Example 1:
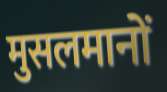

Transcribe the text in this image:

मुसलमानों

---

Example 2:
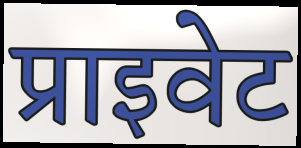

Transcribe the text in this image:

प्राइवेट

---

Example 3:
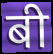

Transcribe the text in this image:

बी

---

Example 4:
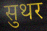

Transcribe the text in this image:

सुथर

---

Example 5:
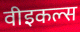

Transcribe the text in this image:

वीइकल्स